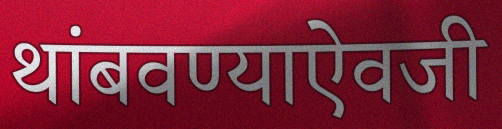
थांबवण्याऐवजी